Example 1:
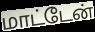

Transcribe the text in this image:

மாட்டேன்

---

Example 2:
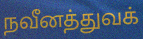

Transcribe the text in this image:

நவீனத்துவக்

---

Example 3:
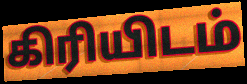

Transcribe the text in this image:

கிரியிடம்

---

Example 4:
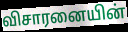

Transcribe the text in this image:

விசாரனையின்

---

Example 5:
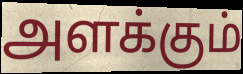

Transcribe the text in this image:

அளக்கும்